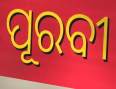
ପୂରବୀ